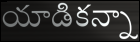
యాడికన్నా